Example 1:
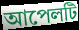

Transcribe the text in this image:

আপেলটি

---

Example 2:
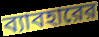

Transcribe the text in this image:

ব্যাবহারের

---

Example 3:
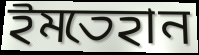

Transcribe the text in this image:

ইমতেহান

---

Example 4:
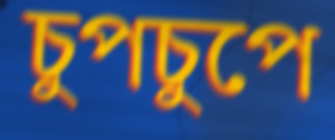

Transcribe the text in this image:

চুপচুপে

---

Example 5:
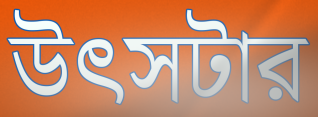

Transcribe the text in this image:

উৎসটার